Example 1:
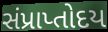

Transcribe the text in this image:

સંપ્રાપ્તોદય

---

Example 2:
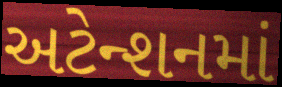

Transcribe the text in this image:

અટેન્શનમાં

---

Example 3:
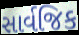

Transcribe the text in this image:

સાર્વજિક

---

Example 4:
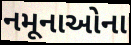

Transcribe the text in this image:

નમૂનાઓના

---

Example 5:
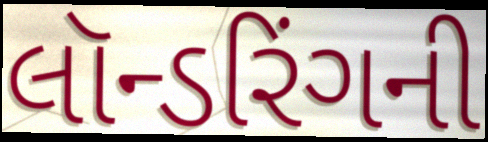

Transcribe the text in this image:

લૉન્ડરિંગની